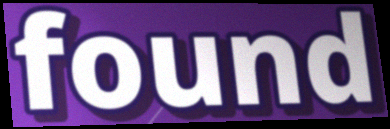
found